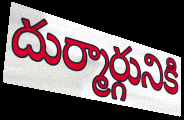
దుర్మార్గునికి